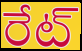
రేట్